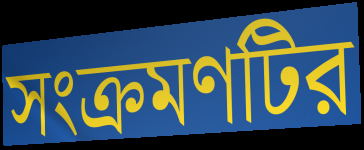
সংক্রমণটির